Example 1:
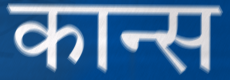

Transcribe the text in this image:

कान्‍स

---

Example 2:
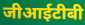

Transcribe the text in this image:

जीआईटीबी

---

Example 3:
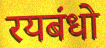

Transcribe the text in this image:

रयबंधो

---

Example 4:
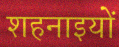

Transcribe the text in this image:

शहनाइयों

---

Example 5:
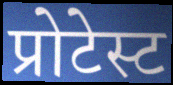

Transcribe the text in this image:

प्रोटेस्ट